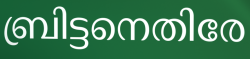
ബ്രിട്ടനെതിരേ